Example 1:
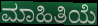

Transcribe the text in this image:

ಮಾಹಿತಿಯೆ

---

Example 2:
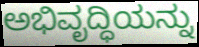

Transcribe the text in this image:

ಅಭಿವೃದ್ಧಿಯನ್ನು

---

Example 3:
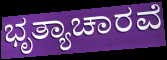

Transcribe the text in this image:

ಭೃತ್ಯಾಚಾರವೆ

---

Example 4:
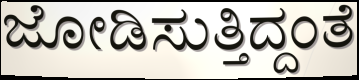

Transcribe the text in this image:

ಜೋಡಿಸುತ್ತಿದ್ದಂತೆ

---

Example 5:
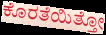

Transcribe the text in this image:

ಕೊರತೆಯಿತ್ತೋ